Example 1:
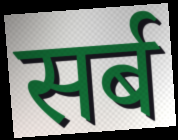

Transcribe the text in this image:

सर्ब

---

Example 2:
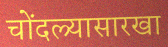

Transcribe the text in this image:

चोंदल्यासारखा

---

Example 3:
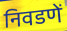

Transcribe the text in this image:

निवडणें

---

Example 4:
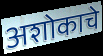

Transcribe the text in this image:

अशोकाचे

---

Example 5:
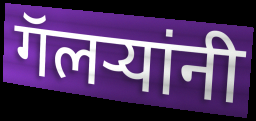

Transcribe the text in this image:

गॅलऱ्यांनी